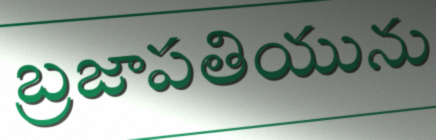
బ్రజాపతియును